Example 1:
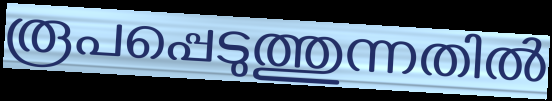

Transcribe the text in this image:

രൂപപ്പെടുത്തുന്നതിൽ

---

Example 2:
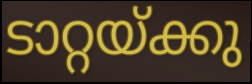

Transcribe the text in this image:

ടാറ്റയ്ക്കു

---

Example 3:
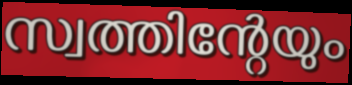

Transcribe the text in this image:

സ്വത്തിന്റേയും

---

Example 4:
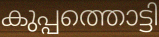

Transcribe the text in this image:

കുപ്പത്തൊട്ടി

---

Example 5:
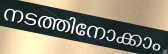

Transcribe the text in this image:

നടത്തിനോക്കാം